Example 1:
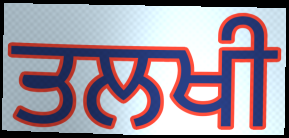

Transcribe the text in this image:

ਤਲਖੀ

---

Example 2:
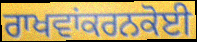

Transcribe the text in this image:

ਰਾਖਵਾਂਕਰਨਕੋਈ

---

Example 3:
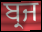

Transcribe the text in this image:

ਬ੍ਰਜ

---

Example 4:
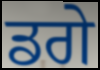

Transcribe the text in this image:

ਡਗੇ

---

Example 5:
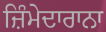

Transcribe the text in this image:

ਜ਼ਿੰਮੇਦਾਰਾਨਾ